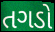
તગડો